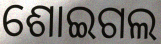
ଶୋଇଗଲ